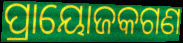
ପ୍ରାୟୋଜକଗଣ